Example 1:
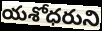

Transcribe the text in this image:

యశోధరుని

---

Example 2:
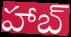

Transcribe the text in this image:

హాబ్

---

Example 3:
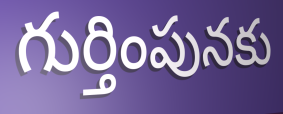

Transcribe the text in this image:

గుర్తింపునకు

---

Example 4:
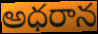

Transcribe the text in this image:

అధరాన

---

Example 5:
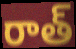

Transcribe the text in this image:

రాత్